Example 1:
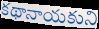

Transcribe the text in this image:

కథానాయకుని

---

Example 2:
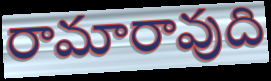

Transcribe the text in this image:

రామారావుది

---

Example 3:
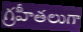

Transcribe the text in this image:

గ్రహీతలుగా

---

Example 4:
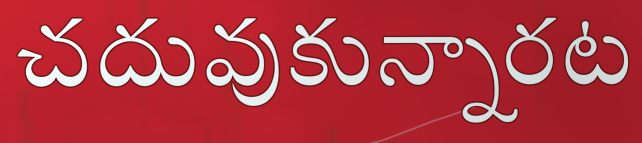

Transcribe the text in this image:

చదువుకున్నారట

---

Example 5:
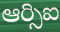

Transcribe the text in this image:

ఆర్సిఐ